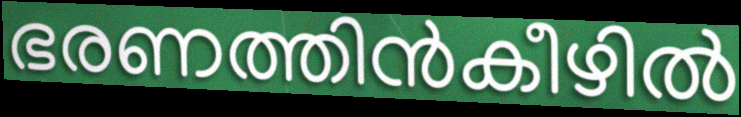
ഭരണത്തിൻകീഴിൽ